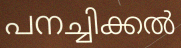
പനച്ചിക്കൽ